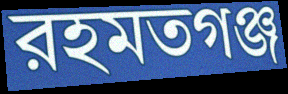
রহমতগঞ্জ